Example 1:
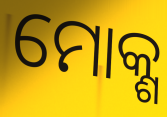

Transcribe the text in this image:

ମୋକ୍ଶ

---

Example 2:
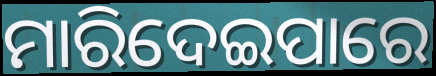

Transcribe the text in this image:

ମାରିଦେଇପାରେ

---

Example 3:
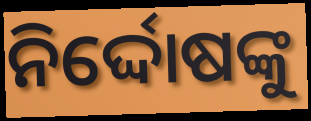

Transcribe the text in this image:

ନିର୍ଦ୍ଦୋଷଙ୍କୁ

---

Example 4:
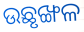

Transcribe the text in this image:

ଉଛୃଙ୍ଖଳ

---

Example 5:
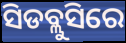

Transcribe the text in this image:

ସିଡବ୍ଲୁସିରେ